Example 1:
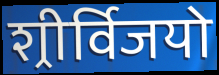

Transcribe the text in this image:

श्रीर्विजयो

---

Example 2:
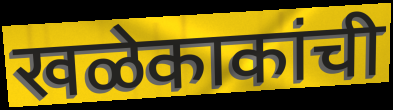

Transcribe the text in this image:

खळेकाकांची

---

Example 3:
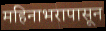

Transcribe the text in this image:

महिनाभरापासून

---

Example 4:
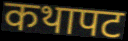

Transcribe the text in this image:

कथापट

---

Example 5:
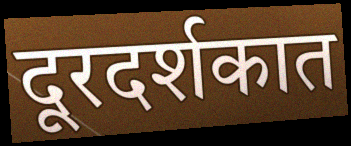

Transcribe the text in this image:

दूरदर्शकात